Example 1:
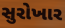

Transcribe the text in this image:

સુરોખાર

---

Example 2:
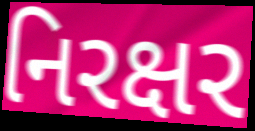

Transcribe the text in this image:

નિરક્ષર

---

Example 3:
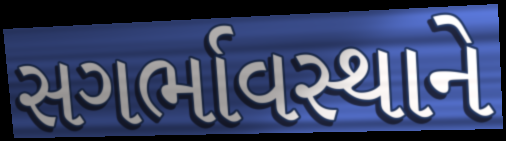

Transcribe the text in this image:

સગર્ભાવસ્થાને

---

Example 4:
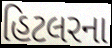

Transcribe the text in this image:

હિટલરના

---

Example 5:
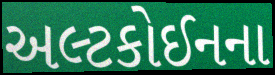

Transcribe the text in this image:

અલ્ટકોઈનના